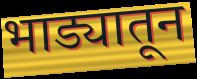
भाड्यातून